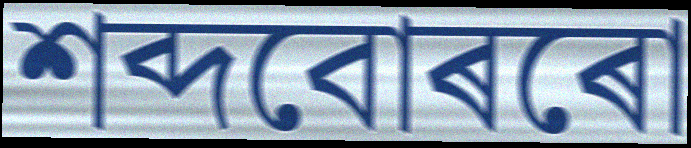
শব্দবোৰৰো